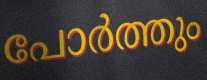
പോർത്തും